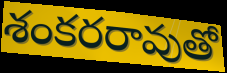
శంకరరావుతో